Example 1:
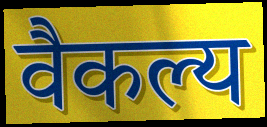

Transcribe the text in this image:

वैकल्य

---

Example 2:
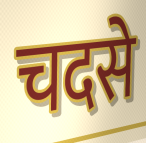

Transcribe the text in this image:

चदसे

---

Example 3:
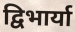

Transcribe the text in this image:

द्विभार्या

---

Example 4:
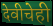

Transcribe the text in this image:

देवीचेही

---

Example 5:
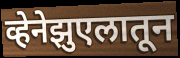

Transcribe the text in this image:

व्हेनेझुएलातून